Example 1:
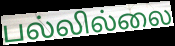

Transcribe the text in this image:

பல்லில்லை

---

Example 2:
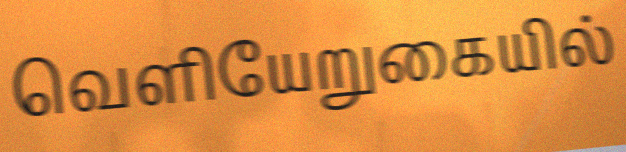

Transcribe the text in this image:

வெளியேறுகையில்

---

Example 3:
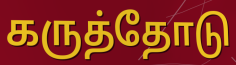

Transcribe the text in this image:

கருத்தோடு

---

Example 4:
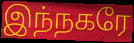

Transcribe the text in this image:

இந்நகரே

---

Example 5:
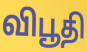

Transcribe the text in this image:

விபூதி